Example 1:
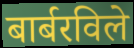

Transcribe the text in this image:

बार्बरविले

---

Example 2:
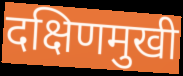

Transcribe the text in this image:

दक्षिणमुखी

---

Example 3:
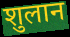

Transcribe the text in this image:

शुलान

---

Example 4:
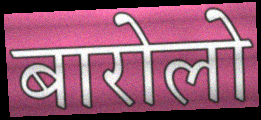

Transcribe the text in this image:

बारोलो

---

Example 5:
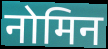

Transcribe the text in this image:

नोमिन